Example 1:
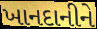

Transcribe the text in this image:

ખાનદાનીને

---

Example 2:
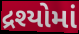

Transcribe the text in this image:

દ્રશ્યોમાં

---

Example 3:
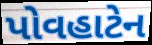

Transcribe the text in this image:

પોવહાટેન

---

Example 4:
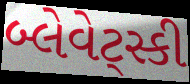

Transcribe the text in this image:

બ્લેવેટ્સ્કી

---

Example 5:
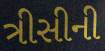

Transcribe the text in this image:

ત્રીસીની